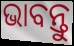
ଭାବନ୍ତୁ